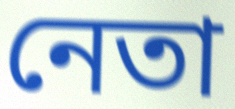
নেতা